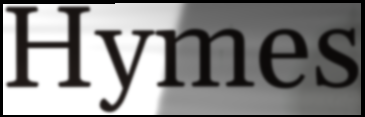
Hymes